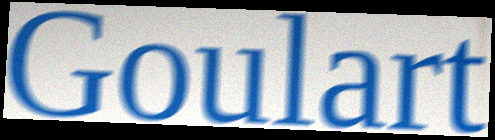
Goulart